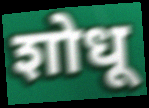
शोधू